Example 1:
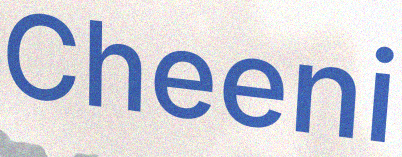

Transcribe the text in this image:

Cheeni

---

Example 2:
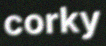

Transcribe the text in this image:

corky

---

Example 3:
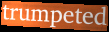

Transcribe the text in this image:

trumpeted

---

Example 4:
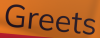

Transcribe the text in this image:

Greets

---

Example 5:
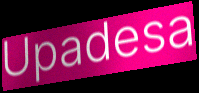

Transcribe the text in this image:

Upadesa